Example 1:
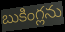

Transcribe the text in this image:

బుకింగ్లను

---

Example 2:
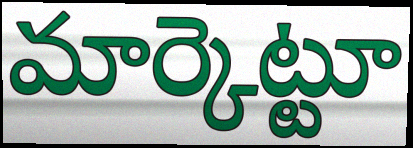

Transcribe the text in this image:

మార్కెట్టూ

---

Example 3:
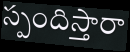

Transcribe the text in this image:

స్పందిస్తారా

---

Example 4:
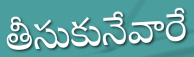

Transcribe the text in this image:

తీసుకునేవారే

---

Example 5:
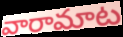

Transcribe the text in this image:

వారామాట